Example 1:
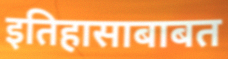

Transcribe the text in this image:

इतिहासाबाबत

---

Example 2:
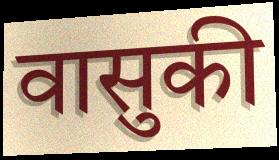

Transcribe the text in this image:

वासुकी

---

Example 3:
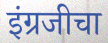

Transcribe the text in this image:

इंग्रजीचा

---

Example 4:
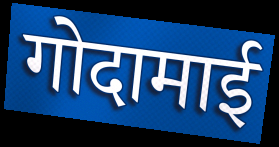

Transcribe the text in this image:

गोदामाई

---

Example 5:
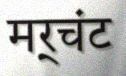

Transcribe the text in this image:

मर्चंट